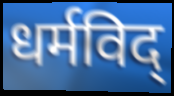
धर्मविद्